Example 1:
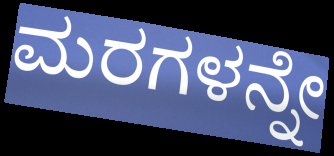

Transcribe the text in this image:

ಮರಗಳನ್ನೇ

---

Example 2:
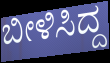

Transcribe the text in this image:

ಬೀಳಿಸಿದ್ದ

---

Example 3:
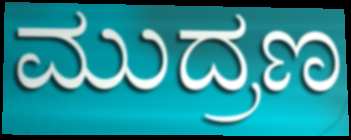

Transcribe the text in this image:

ಮುದ್ರಣ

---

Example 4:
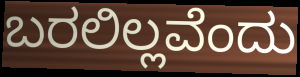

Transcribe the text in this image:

ಬರಲಿಲ್ಲವೆಂದು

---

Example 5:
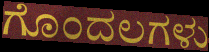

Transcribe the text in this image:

ಗೊಂದಲಗಳು